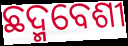
ଛଦ୍ମବେଶୀ